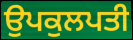
ਉਪਕੁਲਪਤੀ